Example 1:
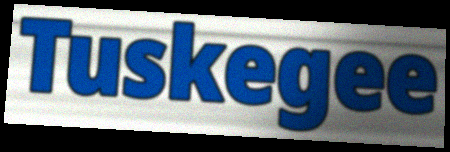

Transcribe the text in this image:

Tuskegee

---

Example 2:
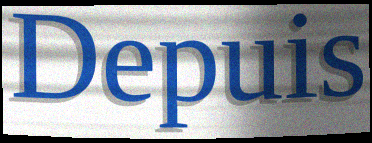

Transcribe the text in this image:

Depuis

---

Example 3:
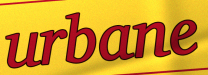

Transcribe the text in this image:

urbane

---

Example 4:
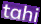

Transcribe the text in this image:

tahi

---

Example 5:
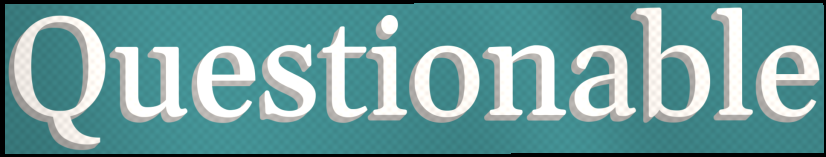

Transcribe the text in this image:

Questionable